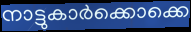
നാട്ടുകാർക്കൊക്കെ